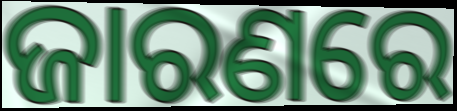
ଜାରଣରେ